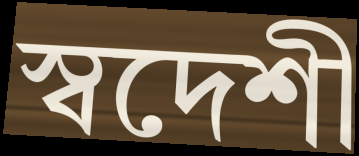
স্বদেশী